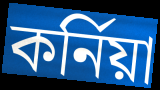
কর্নিয়া